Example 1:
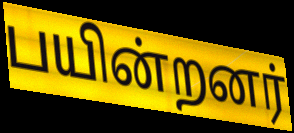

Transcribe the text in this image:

பயின்றனர்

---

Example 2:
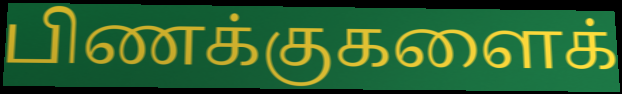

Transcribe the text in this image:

பிணக்குகளைக்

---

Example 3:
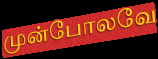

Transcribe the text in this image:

முன்போலவே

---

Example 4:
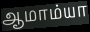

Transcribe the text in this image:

ஆமாம்யா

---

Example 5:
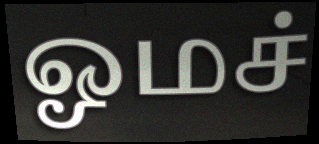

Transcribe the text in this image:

ஓமச்